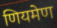
णियमेण